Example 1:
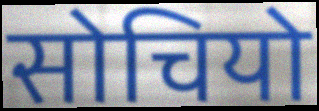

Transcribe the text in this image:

सोचियो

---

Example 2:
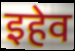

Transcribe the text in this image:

इहेव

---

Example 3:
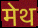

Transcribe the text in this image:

मेथ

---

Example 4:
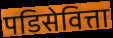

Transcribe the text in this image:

पडिसेवित्ता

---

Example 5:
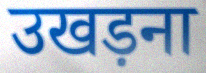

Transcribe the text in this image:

उखड़ना